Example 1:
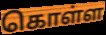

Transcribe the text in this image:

கொள்ள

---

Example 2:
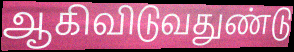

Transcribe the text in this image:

ஆகிவிடுவதுண்டு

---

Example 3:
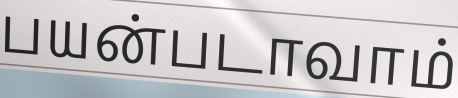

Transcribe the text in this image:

பயன்படாவாம்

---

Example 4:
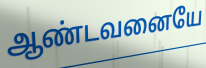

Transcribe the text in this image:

ஆண்டவனையே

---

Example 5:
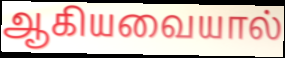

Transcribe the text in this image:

ஆகியவையால்